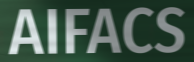
AIFACS